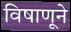
विषाणूने